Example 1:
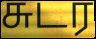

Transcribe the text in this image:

சுடர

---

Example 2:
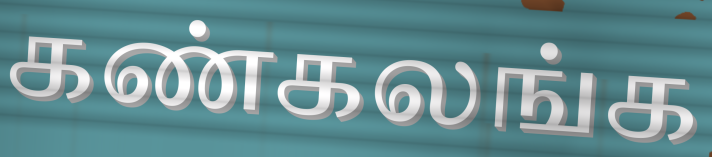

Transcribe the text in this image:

கண்கலங்க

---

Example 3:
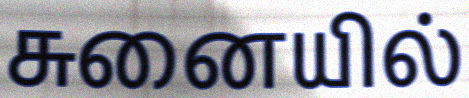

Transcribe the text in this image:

சுனையில்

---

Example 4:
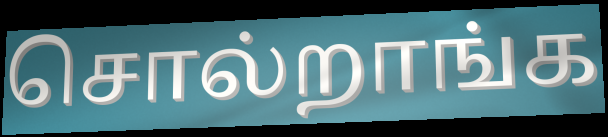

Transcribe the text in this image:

சொல்றாங்க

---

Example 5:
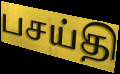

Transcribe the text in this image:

பசய்தி